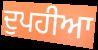
ਦੁਪਹੀਆ